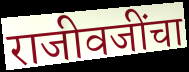
राजीवजींचा